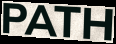
PATH